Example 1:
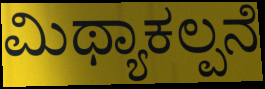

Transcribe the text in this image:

ಮಿಥ್ಯಾಕಲ್ಪನೆ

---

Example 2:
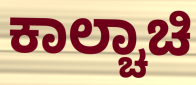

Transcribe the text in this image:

ಕಾಲ್ಚಾಚಿ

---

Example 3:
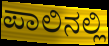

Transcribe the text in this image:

ಪಾಲಿನಲ್ಲಿ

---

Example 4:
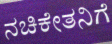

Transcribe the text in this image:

ನಚಿಕೇತನಿಗೆ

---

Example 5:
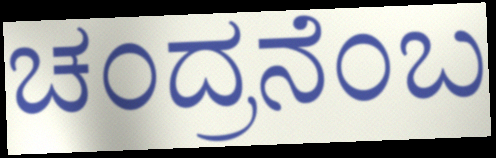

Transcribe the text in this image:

ಚಂದ್ರನೆಂಬ